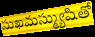
సుఖమస్మ్యుషితో